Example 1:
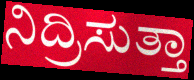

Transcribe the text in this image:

ನಿದ್ರಿಸುತ್ತಾ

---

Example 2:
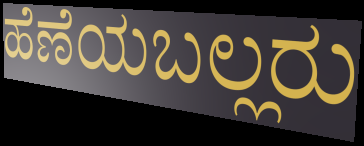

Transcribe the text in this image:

ಹೆಣೆಯಬಲ್ಲರು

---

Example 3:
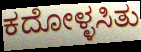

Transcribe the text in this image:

ಕದೋಳ್ಳಸಿತು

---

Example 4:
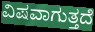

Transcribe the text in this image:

ವಿಷವಾಗುತ್ತದೆ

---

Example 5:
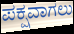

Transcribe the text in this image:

ಪಕ್ಷವಾಗಲು